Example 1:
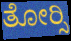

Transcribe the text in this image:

ತೋರ್‍ಸಿ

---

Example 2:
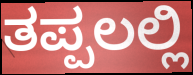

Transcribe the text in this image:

ತಪ್ಪಲಲ್ಲಿ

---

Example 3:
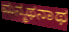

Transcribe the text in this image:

ಮನ್ಮಥನಾಥ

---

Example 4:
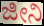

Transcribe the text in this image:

ಜೀನಿ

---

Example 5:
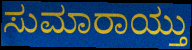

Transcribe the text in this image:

ಸುಮಾರಾಯ್ತು